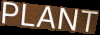
PLANT